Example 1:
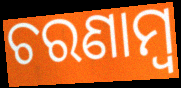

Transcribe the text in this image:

ଚରଣାମ୍ବ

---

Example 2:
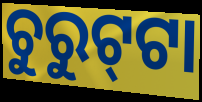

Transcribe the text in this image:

ଚୁରୁଟ୍‍ଟା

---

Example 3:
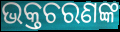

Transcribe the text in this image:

ଭକ୍ତଚରଣଙ୍କ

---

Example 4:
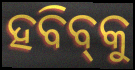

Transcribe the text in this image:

ହବିବ୍‌କୁ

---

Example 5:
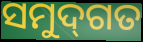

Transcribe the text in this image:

ସମୁଦ୍‌ଗତ